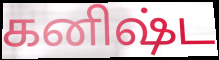
கனிஷ்ட